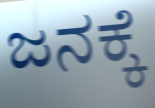
ಜನಕ್ಕೆ